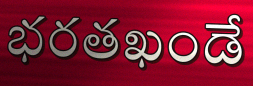
భరతఖండే